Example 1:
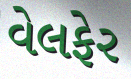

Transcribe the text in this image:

વેલફેર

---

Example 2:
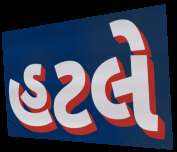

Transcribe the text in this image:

હટલે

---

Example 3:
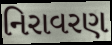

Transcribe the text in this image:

નિરાવરણ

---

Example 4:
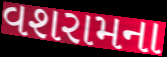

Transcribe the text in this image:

વશરામના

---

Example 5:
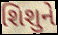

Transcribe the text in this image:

શિશુને